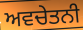
ਅਵਚੇਤਨੀ